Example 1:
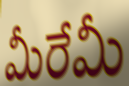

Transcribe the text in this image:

మీరేమీ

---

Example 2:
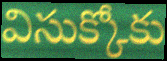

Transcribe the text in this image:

విసుక్కోకు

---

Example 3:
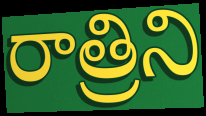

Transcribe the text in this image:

రాత్రిని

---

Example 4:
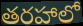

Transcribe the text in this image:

తరహాలో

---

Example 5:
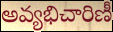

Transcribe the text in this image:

అవ్యభిచారిణీ